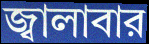
জ্বালাবার